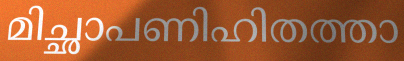
മിച്ഛാപണിഹിതത്താ